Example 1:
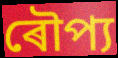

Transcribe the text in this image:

ৰৌপ্য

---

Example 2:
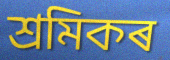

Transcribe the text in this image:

শ্ৰমিকৰ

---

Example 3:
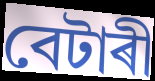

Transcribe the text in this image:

বেটাৰী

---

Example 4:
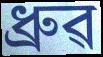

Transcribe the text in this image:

ধ্ৰুৱ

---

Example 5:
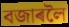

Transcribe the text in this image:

বজাৰলৈ